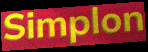
Simplon